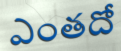
ఎంతదో